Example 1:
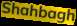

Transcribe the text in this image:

Shahbagh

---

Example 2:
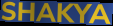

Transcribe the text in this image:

SHAKYA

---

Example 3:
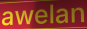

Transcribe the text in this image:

awelan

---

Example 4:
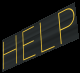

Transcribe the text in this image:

HELP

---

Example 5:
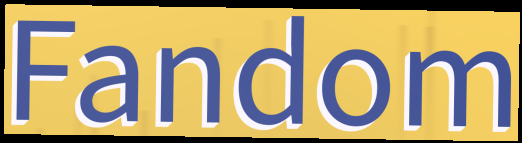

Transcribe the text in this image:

Fandom